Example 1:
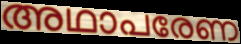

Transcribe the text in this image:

അഥാപരേണ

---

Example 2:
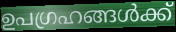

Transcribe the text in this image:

ഉപഗ്രഹങ്ങൾക്ക്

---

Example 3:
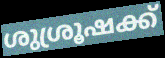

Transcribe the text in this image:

ശുശ്രൂഷക്ക്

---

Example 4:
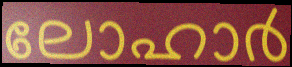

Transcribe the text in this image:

ലോഹാർ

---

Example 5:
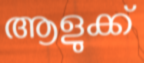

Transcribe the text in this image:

ആളുക്ക്